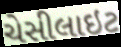
ચેસીલાઇટ